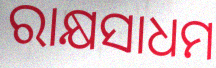
ରାକ୍ଷସାଧମ